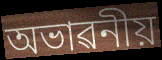
অভাৱনীয়